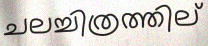
ചലച്ചിത്രത്തില്